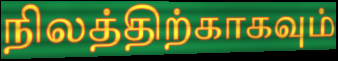
நிலத்திற்காகவும்